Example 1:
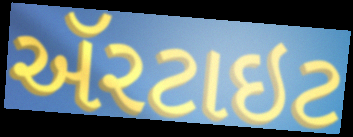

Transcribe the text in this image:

ઍરટાઇટ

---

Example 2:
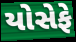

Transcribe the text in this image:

યોસેફે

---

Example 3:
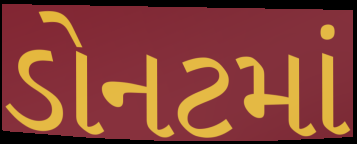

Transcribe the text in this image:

ડોનટમાં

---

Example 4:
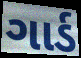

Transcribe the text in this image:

ગાર્ડ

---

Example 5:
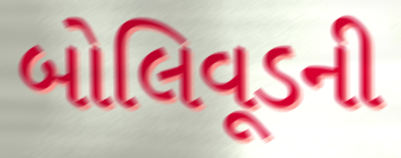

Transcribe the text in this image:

બોલિવૂડની